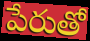
పేరుతో